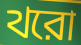
থরো